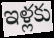
ఇళ్లకు